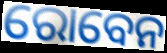
ରୋବେନ